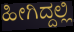
ಹೀಗಿದ್ದಲ್ಲಿ